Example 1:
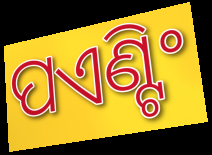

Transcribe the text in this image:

ପଏଣ୍ଟିଂ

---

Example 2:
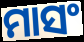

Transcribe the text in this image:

ମାସଂ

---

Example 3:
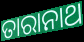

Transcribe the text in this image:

ତାରାନାଥ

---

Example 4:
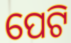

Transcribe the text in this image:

ପେଟି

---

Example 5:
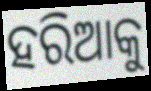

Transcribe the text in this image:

ହରିଆକୁ